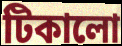
টিকালো